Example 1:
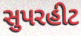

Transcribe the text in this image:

સુપરહીટ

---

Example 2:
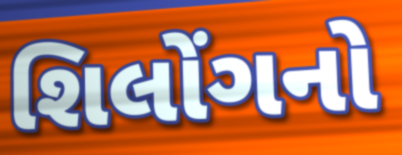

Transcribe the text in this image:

શિલોંગનો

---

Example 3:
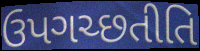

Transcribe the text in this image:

ઉપગચ્છતીતિ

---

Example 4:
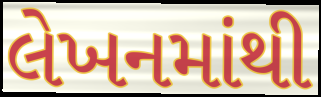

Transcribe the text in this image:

લેખનમાંથી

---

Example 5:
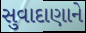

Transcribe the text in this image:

સુવાદાણાને